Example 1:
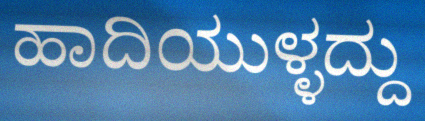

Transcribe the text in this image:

ಹಾದಿಯುಳ್ಳದ್ದು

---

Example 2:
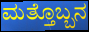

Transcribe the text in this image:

ಮತ್ತೊಬ್ಬನ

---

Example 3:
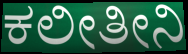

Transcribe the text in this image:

ಕಲೀತೀನಿ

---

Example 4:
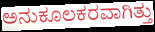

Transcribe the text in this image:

ಅನುಕೂಲಕರವಾಗಿತ್ತು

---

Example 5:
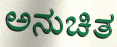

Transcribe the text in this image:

ಅನುಚಿತ